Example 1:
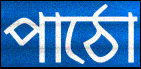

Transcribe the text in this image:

পাঠো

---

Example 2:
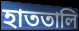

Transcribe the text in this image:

হাততালি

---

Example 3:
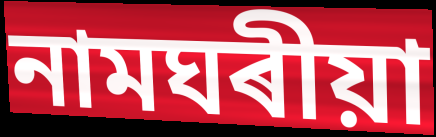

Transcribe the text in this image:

নামঘৰীয়া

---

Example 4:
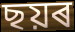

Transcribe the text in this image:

ছয়ৰ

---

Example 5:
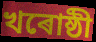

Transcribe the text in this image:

খৰোষ্ঠী